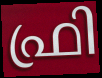
ഫ്രി